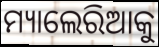
ମ୍ୟାଲେରିଆକୁ